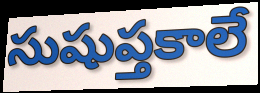
సుషుప్తకాలే